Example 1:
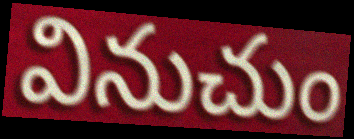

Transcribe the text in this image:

వినుచుం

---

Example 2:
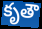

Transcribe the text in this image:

కృతౌ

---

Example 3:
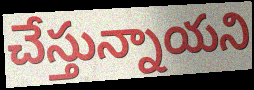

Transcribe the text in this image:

చేస్తున్నాయని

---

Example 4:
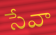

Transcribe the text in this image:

సేవా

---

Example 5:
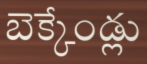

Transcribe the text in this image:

బెక్కేండ్లు